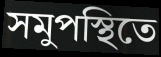
সমুপস্থিতে